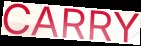
CARRY